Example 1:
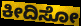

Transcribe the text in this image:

ಕೀದಿಸೋ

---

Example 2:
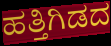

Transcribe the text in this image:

ಹತ್ತಿಗಿಡದ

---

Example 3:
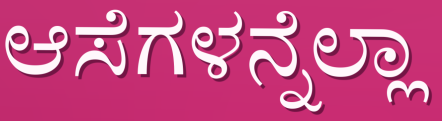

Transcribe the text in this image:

ಆಸೆಗಳನ್ನೆಲ್ಲಾ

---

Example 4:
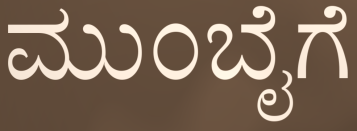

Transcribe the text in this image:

ಮುಂಬೈಗೆ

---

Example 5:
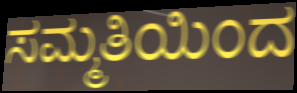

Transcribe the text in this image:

ಸಮ್ಮತಿಯಿಂದ